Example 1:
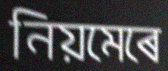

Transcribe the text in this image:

নিয়মেৰে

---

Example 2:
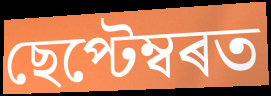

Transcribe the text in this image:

ছেপ্টেম্বৰত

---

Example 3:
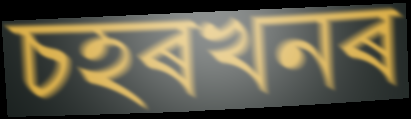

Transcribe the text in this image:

চহৰখনৰ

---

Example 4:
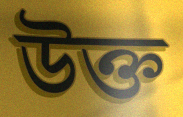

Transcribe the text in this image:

উক্ত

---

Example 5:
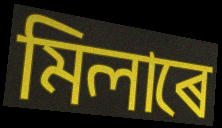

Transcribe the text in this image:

মিলাৰে